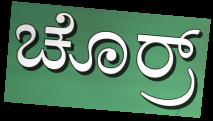
ಚೊರ್ರ್